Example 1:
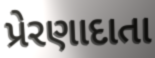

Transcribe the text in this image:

પ્રેરણાદાતા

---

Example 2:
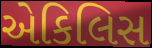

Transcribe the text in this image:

એકિલિસ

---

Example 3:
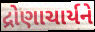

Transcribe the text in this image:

દ્રોણાચાર્યને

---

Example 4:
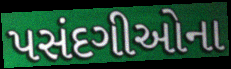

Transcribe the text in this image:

પસંદગીઓના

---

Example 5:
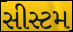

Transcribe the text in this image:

સીસ્ટમ